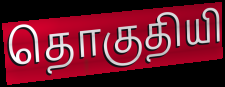
தொகுதியி